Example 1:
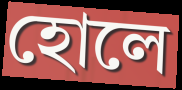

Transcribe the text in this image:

হোলে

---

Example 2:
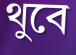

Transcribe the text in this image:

থুবে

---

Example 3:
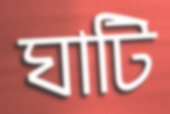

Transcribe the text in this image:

ঘাটি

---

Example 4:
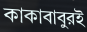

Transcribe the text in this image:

কাকাবাবুরই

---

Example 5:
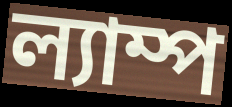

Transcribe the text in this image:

ল্যাম্প